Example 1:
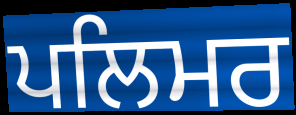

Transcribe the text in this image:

ਪਲਿਮਰ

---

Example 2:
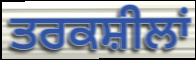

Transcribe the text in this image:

ਤਰਕਸ਼ੀਲਾਂ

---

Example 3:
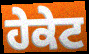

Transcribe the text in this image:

ਹੇਕੇਟ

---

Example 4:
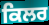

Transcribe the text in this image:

ਕਿਲਰ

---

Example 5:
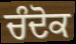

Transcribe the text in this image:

ਚੰਦੋਕ